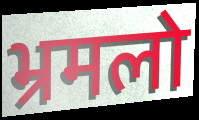
भ्रमलो